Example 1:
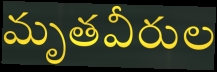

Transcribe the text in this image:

మృతవీరుల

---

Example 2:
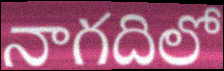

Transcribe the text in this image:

నాగదిలో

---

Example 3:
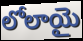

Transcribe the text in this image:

లోలాయై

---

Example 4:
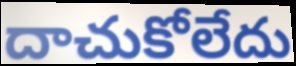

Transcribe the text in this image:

దాచుకోలేదు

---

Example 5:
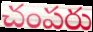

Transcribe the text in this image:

చంపరు